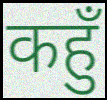
कहुँ